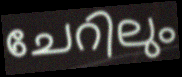
ചേറിലും